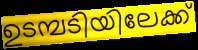
ഉടമ്പടിയിലേക്ക്